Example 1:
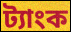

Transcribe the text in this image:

ট্যাংক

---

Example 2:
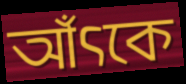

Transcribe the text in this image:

আঁৎকে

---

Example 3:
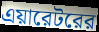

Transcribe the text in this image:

এয়ারেটরের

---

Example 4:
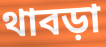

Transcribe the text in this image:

থাবড়া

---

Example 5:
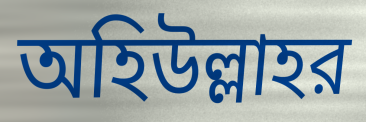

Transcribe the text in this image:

অহিউল্লাহর